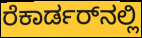
ರೆಕಾರ್ಡರ್‌ನಲ್ಲಿ